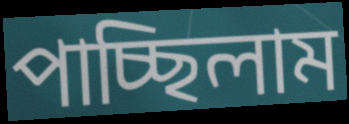
পাচ্ছিলাম